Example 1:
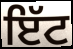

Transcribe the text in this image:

ਇੱਟ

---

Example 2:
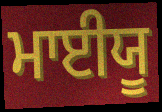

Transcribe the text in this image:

ਮਾਈਯੂ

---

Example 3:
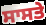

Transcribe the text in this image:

ਸਾਸਤੇ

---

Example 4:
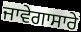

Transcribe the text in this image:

ਜਾਵੇਗਾਸਾਰੇ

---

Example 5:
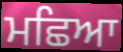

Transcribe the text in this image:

ਮਛਿਆ